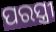
ପରସ୍ତ୍ରୀ